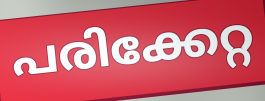
പരിക്കേറ്റ